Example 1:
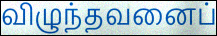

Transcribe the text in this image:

விழுந்தவனைப்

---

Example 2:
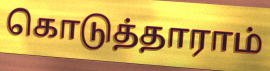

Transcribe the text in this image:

கொடுத்தாராம்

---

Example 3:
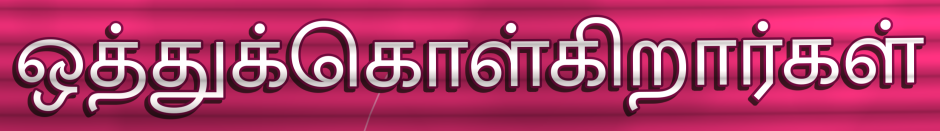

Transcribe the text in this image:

ஒத்துக்கொள்கிறார்கள்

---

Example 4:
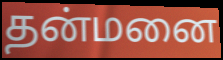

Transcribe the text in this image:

தன்மனை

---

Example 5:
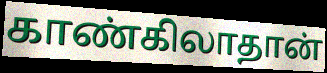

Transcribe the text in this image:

காண்கிலாதான்